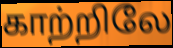
காற்றிலே